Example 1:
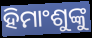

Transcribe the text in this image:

ହିମାଂଶୁଙ୍କୁ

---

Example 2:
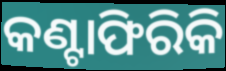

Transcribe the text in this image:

କଣ୍ଟାଫିରିକି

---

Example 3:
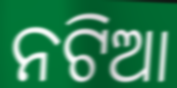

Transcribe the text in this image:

ନଟିଆ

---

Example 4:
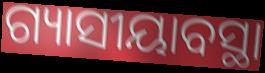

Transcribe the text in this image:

ଗ୍ୟାସୀୟାବସ୍ଥା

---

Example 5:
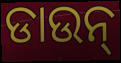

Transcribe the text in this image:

ଡାଉନ୍